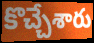
కొచ్చేశారు